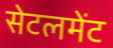
सेटलमेंट